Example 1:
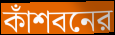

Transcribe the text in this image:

কাঁশবনের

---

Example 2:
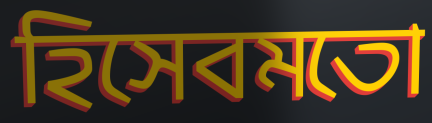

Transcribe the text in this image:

হিসেবমতো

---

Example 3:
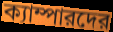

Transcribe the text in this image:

ক্যাম্পারদের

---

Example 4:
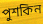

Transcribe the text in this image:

পুশকিন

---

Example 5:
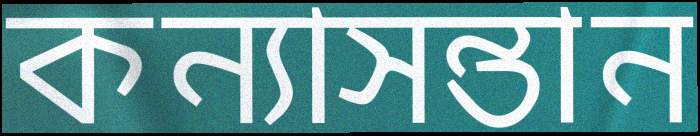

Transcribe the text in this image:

কন্যাসন্তান